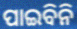
ପାଇବିନି